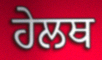
ਹੇਲਥ